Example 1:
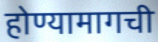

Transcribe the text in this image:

होण्यामागची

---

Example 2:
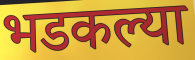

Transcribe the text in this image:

भडकल्या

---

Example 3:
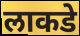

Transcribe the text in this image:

लाकडे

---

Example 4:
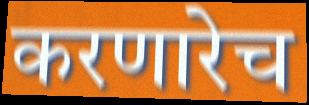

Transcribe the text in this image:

करणारेच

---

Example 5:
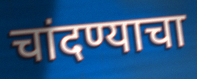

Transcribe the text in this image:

चांदण्याचा